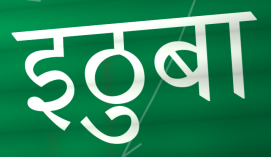
इठुबा